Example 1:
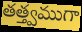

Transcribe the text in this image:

తత్త్వముగా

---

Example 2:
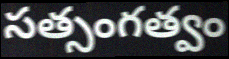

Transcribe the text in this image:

సత్సంగత్వం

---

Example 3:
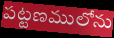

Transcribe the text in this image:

పట్టణములోను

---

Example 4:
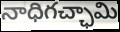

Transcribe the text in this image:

నాధిగచ్ఛామి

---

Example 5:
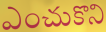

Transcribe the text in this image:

ఎంచుకొని